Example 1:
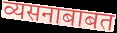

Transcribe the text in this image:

व्यसनाबाबत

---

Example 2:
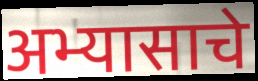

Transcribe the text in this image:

अभ्यासाचे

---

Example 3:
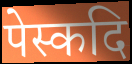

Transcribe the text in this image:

पेस्कदि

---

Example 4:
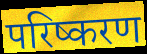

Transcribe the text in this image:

परिष्करण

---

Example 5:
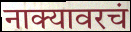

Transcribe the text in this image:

नाक्यावरचं